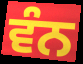
ਵੰਨ